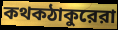
কথকঠাকুরেরা